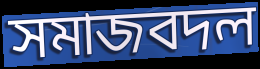
সমাজবদল